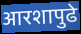
आरशापुढे